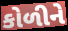
કોળીને